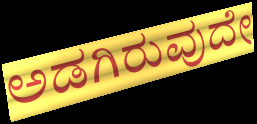
ಅಡಗಿರುವುದೇ